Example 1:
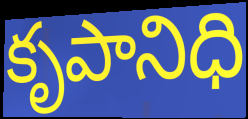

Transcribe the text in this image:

కృపానిధి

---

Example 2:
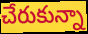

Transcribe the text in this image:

చేరుకున్నా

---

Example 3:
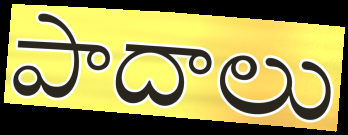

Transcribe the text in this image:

పాదాలు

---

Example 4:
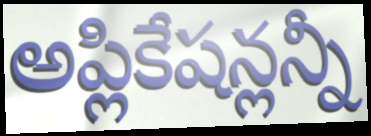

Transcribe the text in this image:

అప్లికేషన్లన్నీ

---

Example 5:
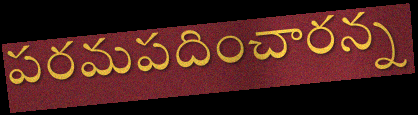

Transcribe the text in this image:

పరమపదించారన్న